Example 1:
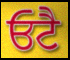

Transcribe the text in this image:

ਓਟੈ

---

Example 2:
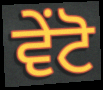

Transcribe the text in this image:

ਵੇਂਟੋ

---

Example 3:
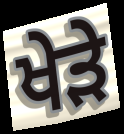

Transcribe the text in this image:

ਖੇੜੇ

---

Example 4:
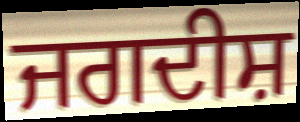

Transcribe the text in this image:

ਜਗਦੀਸ਼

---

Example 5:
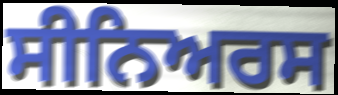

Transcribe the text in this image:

ਸੀਨਿਅਰਸ